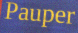
Pauper